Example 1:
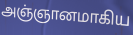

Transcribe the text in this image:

அஞ்ஞானமாகிய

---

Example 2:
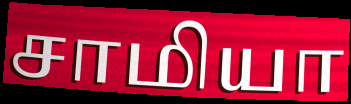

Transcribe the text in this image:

சாமியா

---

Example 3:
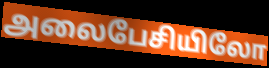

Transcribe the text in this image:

அலைபேசியிலோ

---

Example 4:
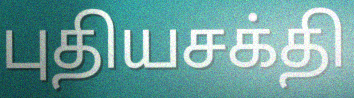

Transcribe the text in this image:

புதியசக்தி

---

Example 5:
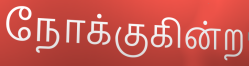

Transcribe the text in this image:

நோக்குகின்ற